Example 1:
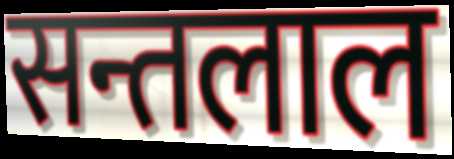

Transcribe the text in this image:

सन्तलाल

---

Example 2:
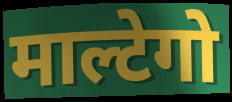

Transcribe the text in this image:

माल्टेगो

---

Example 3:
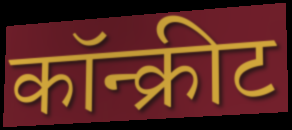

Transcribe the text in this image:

कॉन्क्रीट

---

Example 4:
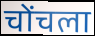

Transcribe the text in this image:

चोंचला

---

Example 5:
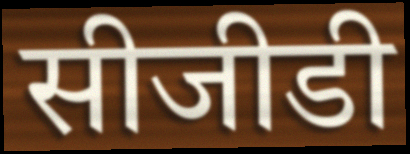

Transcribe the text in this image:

सीजीडी